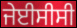
ਜੇਈਸੀਸੀ